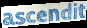
ascendit